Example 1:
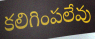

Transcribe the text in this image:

కలిగింపలేవు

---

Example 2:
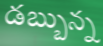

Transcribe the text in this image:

డబ్బున్న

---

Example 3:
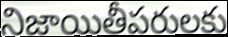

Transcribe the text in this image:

నిజాయితీపరులకు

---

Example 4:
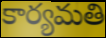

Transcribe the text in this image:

కార్యమతి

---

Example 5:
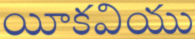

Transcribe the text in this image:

యీకవియు